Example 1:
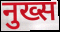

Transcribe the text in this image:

नुख्स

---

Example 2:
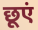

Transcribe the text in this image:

छूएं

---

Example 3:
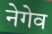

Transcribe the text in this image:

नेगेव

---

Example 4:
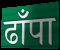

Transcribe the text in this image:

ढाँपा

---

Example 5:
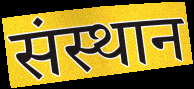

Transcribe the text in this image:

संस्‍थान